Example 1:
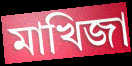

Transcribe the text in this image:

মাখিজা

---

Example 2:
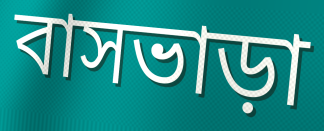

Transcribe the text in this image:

বাসভাড়া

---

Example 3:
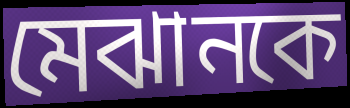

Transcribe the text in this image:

মেঝানকে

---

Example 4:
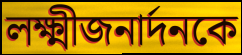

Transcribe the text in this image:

লক্ষ্মীজনার্দনকে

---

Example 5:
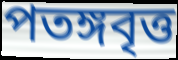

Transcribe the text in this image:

পতঙ্গবৃত্ত